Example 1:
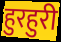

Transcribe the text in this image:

हुरहुरी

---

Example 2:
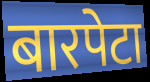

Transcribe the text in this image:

बारपेटा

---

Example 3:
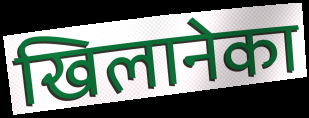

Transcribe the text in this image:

खिलानेका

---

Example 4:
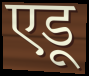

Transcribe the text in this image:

एडू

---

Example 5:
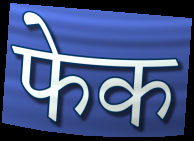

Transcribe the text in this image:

फेक